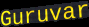
Guruvar